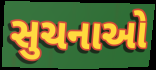
સુચનાઓ